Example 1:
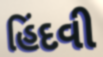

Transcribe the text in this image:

હિંદવી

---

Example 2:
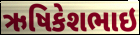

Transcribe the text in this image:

ઋષિકેશભાઇ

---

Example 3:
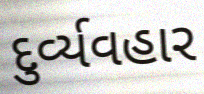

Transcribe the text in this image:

દુર્વ્યવહાર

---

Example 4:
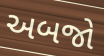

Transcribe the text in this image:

અબજો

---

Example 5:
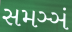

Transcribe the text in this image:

સમઞ્ઞં